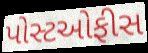
પોસ્ટઓફીસ